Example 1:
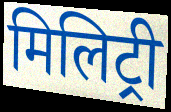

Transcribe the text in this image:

मिलिट्री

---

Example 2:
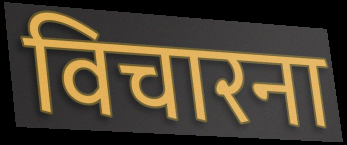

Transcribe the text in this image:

विचारना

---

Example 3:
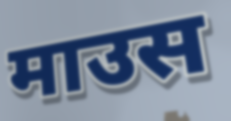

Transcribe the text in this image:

माउस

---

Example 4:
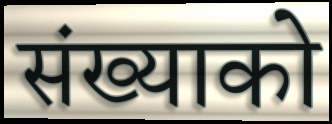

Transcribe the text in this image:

संख्याको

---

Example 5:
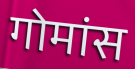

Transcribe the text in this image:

गोमांस